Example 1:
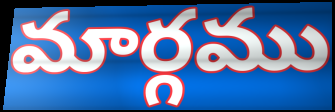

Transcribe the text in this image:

మార్గము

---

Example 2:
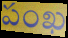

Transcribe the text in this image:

పంఖ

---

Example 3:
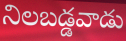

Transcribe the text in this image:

నిలబడ్డవాడు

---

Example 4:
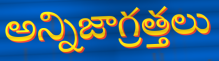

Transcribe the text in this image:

అన్నిజాగ్రత్తలు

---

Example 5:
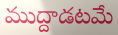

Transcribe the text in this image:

ముద్దాడటమే